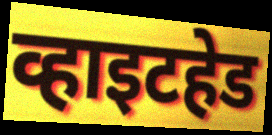
व्हाइटहेड